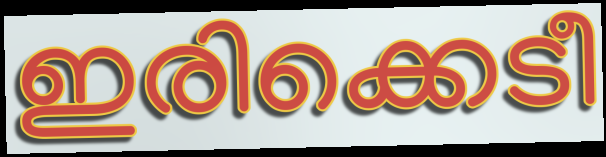
ഇരിക്കെടീ